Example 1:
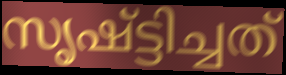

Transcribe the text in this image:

സൃഷ്ട്ടിച്ചത്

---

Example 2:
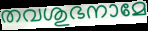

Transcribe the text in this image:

തവശുഭനാമേ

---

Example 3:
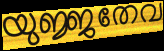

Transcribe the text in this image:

യുജ്ജതേവ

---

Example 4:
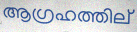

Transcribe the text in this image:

ആഗ്രഹത്തില്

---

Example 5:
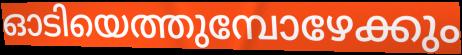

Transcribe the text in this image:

ഓടിയെത്തുമ്പോഴേക്കും